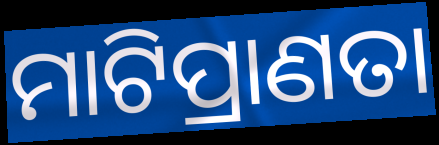
ମାଟିପ୍ରାଣତା